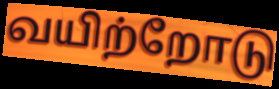
வயிற்றோடு